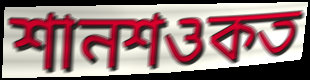
শানশওকত